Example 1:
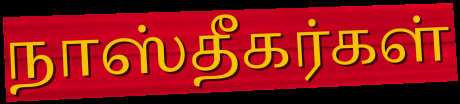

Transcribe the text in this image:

நாஸ்தீகர்கள்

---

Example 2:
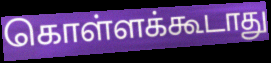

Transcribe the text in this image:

கொள்ளக்கூடாது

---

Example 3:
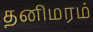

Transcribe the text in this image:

தனிமரம்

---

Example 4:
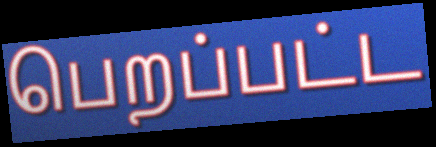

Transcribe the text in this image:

பெறப்பட்ட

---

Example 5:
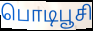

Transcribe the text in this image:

பொடிபூசி